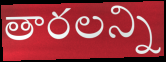
తారలన్ని